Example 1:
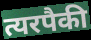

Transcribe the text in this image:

त्यरपैकी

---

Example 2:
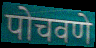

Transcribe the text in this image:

पोचवणे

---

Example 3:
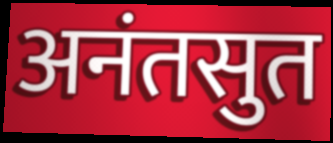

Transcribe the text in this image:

अनंतसुत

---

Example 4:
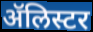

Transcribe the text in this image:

ॲलिस्टर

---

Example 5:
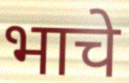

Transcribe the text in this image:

भाचे